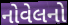
નોવેલનો